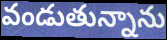
వండుతున్నాను